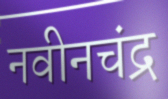
नवीनचंद्र